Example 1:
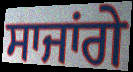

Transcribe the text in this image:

ਸਾਜਾਂਗੇ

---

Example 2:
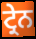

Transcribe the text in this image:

ਟ੍ਰੇਨ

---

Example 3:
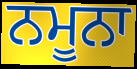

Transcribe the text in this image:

ਨਮੂਨਾ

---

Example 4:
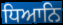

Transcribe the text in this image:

ਧਿਆਨਿ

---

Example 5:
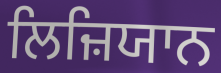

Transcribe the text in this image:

ਲਿਜ਼ਿਯਾਨ